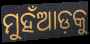
ମୁହଁଆଡ଼କୁ